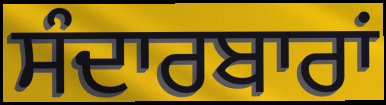
ਸੰਦਾਰਬਾਰਾਂ